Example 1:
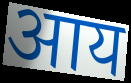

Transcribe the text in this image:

आय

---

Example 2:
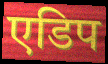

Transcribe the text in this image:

एडिप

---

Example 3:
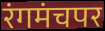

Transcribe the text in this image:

रंगमंचपर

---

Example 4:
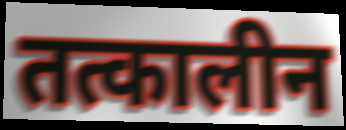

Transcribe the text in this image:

तत्कालीन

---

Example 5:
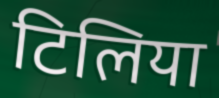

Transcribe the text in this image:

टिलिया